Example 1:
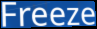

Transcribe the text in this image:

Freeze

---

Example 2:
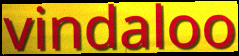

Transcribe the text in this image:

vindaloo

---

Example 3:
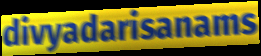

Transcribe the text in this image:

divyadarisanams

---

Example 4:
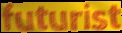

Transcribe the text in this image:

futurist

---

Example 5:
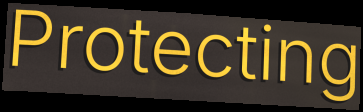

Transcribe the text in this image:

Protecting